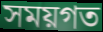
সময়গত